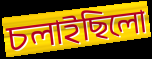
চলাইছিলো